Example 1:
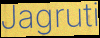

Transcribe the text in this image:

Jagruti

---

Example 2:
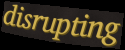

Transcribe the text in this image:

disrupting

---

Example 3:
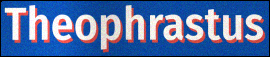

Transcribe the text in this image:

Theophrastus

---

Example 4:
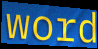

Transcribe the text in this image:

word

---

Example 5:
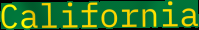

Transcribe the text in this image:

California